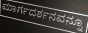
ಮಾರ್ಗದರ್ಶನವನ್ನೂ